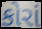
કોરાં